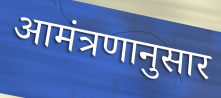
आमंत्रणानुसार